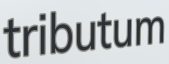
tributum